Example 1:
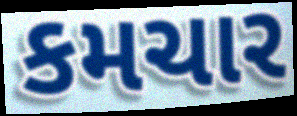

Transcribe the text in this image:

કમચાર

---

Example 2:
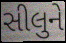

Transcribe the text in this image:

સીલુને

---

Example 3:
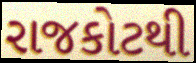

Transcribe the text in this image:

રાજકોટથી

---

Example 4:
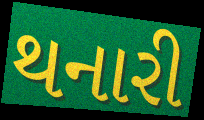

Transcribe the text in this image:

થનારી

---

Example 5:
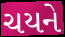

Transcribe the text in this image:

ચયને